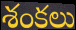
శంకలు